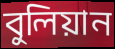
বুলিয়ান